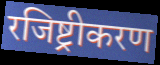
रजिष्ट्रीकरण